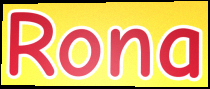
Rona